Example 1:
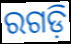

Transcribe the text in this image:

ରଗଡ଼ି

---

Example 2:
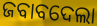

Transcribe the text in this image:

ଜବାବଦେଲା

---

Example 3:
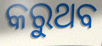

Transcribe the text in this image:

କରୁଥବ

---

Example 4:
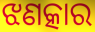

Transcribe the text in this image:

ଝଣତ୍କାର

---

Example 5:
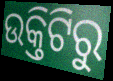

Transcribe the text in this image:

ଉକ୍ତିଟିରୁ